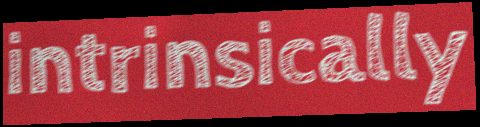
intrinsically